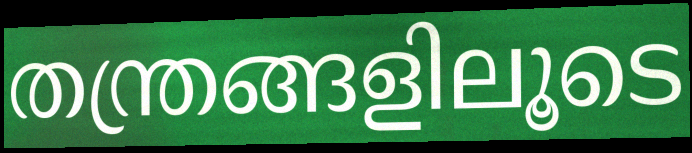
തന്ത്രങ്ങളിലൂടെ